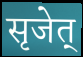
सृजेत्